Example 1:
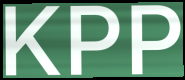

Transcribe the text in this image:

KPP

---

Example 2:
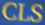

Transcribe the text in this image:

CLS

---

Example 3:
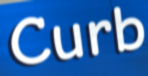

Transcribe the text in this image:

Curb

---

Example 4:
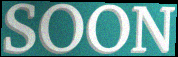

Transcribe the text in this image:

SOON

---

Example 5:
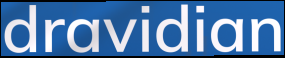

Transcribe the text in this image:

dravidian